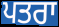
ਪਤਰਾ